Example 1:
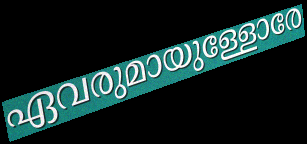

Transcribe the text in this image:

ഏവരുമായുള്ളോരേ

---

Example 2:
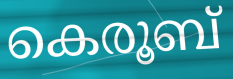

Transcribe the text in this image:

കെരൂബ്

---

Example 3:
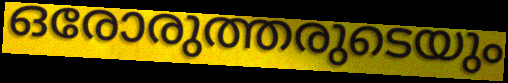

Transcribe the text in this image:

ഒരോരുത്തരുടെയും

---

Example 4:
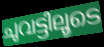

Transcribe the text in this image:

ചുവട്ടിലൂടെ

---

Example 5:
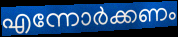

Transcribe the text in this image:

എന്നോർക്കണം